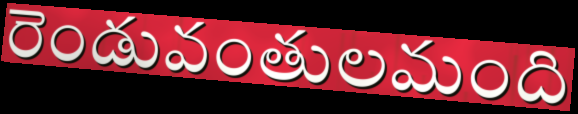
రెండువంతులమంది